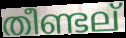
തീണ്ടല്